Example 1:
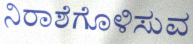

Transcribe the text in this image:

ನಿರಾಶೆಗೊಳಿಸುವ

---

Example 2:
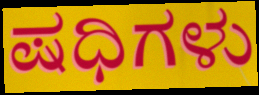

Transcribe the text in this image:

ಷಧಿಗಳು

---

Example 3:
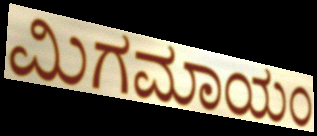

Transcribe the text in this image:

ಮಿಗಮಾಯಂ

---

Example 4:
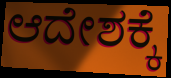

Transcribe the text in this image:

ಆದೇಶಕ್ಕೆ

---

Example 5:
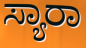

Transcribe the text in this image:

ಸ್ಯಾರಾ